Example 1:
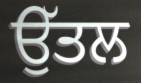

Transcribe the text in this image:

ਉੱਤਲ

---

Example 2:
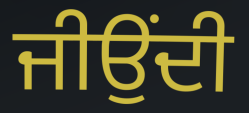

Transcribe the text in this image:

ਜੀਉਂਦੀ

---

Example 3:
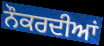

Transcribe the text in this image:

ਨੌਕਰਦੀਆਂ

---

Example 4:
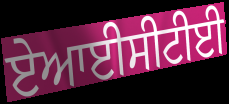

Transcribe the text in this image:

ਏਆਈਸੀਟੀਈ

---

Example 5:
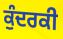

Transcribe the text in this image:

ਕੁੰਦਰਕੀ